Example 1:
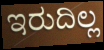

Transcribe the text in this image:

ಇರುದಿಲ್ಲ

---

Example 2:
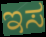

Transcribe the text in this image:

ಇಸ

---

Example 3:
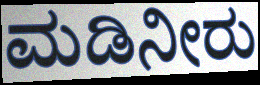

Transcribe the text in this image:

ಮಡಿನೀರು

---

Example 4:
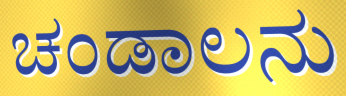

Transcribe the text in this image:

ಚಂಡಾಲನು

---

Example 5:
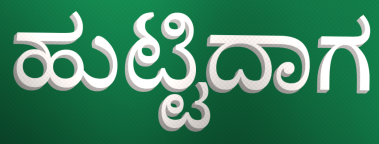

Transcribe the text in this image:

ಹುಟ್ಟಿದಾಗ